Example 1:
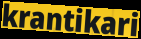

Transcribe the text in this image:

krantikari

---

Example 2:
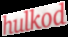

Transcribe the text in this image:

hulkod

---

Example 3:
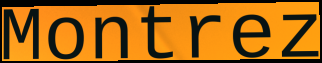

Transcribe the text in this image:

Montrez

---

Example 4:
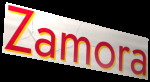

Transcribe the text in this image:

Zamora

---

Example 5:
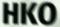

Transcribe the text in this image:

HKO